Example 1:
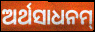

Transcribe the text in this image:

ଅର୍ଥସାଧନମ୍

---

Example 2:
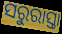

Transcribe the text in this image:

ସରୁରାସ୍ତା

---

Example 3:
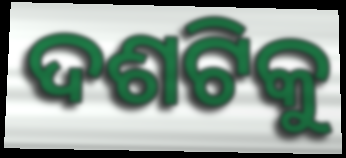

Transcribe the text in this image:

ଦଶଟିକୁ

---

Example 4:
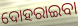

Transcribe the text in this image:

ଦୋହରାଇବା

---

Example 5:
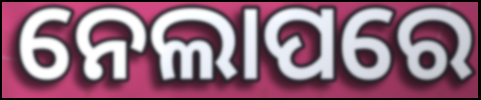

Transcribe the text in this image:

ନେଲାପରେ